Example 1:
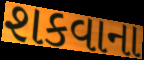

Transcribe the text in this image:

શકવાના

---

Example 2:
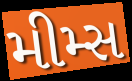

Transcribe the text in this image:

મીમ્સ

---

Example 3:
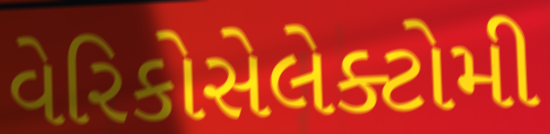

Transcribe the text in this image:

વેરિકોસેલેક્ટોમી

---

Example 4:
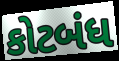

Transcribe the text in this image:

કોટબંધ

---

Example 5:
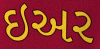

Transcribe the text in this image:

ઇઅર